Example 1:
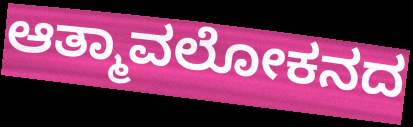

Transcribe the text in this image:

ಆತ್ಮಾವಲೋಕನದ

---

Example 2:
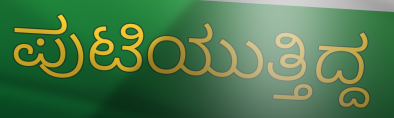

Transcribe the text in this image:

ಪುಟಿಯುತ್ತಿದ್ದ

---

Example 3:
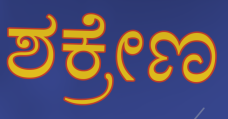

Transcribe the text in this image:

ಶಕ್ರೇಣ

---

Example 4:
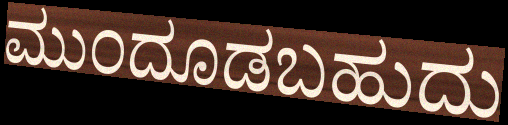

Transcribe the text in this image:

ಮುಂದೂಡಬಹುದು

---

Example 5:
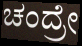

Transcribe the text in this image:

ಚಂದ್ರೇ